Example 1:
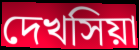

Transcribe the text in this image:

দেখসিয়া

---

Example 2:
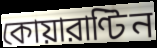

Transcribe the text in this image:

কোয়ারাণ্টিন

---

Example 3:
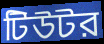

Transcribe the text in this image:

টিউটর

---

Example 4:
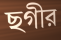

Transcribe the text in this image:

ছগীর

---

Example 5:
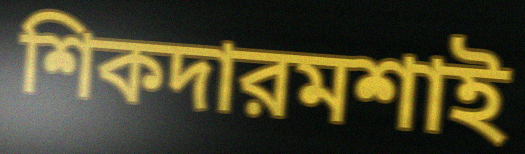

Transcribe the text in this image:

শিকদারমশাই